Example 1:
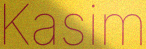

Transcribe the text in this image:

Kasim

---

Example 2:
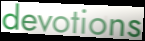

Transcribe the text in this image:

devotions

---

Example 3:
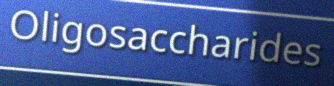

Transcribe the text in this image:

Oligosaccharides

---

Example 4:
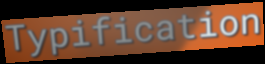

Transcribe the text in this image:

Typification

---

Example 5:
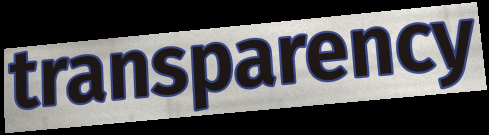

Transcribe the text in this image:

transparency